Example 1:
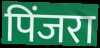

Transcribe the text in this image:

पिंजरा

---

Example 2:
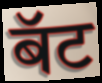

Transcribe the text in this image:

बॅट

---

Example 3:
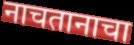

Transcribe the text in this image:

नाचतानाचा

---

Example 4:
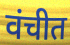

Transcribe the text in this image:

वंचीत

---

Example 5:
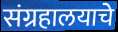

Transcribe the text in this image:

संग्रहालयाचे